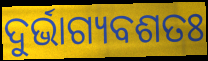
ଦୁର୍ଭାଗ୍ୟବଶତଃ